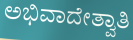
ಅಭಿವಾದೇತ್ವಾತಿ